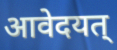
आवेदयत्